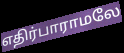
எதிர்பாராமலே